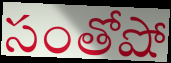
సంతోషో